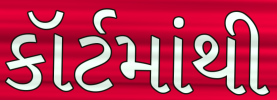
કૉર્ટમાંથી